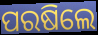
ପରଷିଲେ